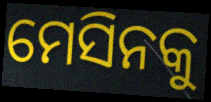
ମେସିନକୁ